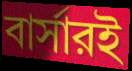
বার্সারই